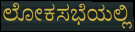
ಲೋಕಸಭೆಯಲ್ಲಿ